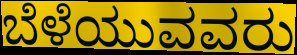
ಬೆಳೆಯುವವರು